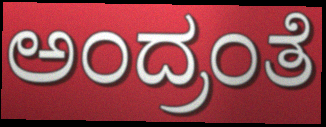
ಅಂದ್ರಂತೆ